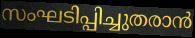
സംഘടിപ്പിച്ചുതരാൻ